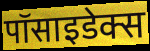
पॉसाइडेक्स